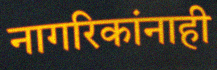
नागरिकांनाही